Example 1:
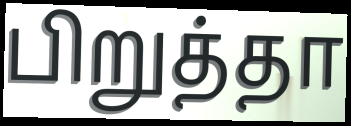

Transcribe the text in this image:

பிறுத்தா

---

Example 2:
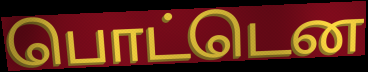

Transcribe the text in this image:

பொட்டென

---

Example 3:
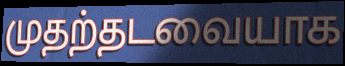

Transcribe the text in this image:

முதற்தடவையாக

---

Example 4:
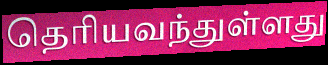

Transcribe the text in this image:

தெரியவந்துள்ளது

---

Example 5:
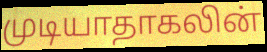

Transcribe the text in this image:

முடியாதாகலின்